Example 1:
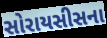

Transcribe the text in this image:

સોરાયસીસના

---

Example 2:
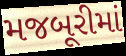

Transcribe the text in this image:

મજબૂરીમાં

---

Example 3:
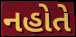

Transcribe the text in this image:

નહોતે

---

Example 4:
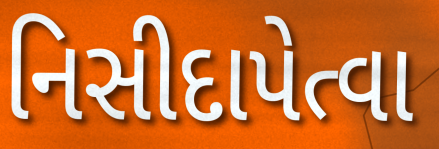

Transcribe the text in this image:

નિસીદાપેત્વા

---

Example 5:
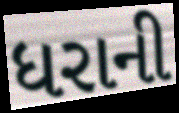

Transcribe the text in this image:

ધરાની